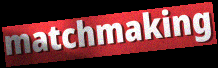
matchmaking